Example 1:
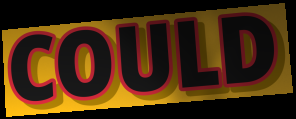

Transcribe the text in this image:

COULD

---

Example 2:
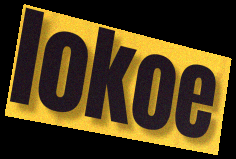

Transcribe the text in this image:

lokoe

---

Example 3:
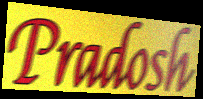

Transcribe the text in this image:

Pradosh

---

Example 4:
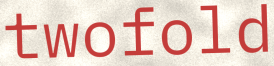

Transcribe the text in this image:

twofold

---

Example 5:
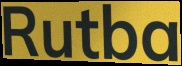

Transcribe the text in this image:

Rutba